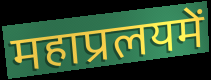
महाप्रलयमें